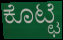
ಕೊಟ್ಟೆ